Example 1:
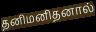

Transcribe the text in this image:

தனிமனிதனால்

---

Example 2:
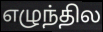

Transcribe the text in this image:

எழுந்தில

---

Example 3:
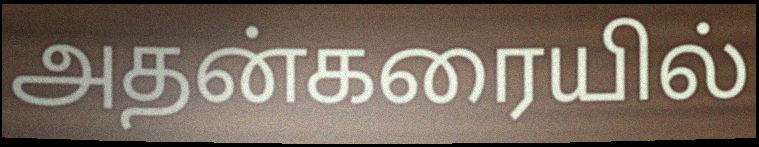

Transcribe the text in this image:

அதன்கரையில்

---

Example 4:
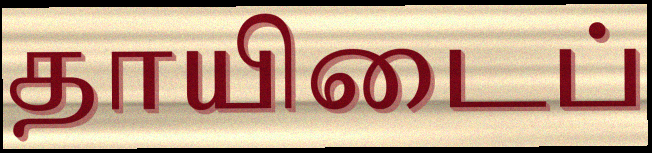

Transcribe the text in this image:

தாயிடைப்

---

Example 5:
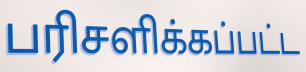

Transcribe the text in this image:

பரிசளிக்கப்பட்ட